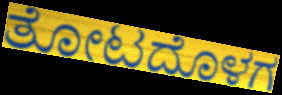
ತೋಟದೊಳಗ